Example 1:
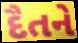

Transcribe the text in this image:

દૈતને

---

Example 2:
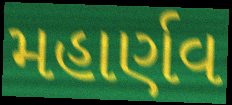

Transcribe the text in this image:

મહાર્ણવ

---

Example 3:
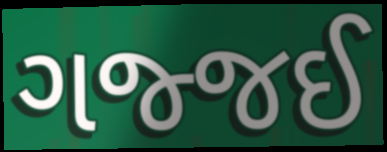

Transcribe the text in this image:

ગજ્જઈ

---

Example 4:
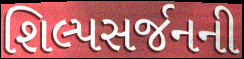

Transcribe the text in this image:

શિલ્પસર્જનની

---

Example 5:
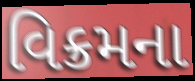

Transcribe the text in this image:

વિક્રમના